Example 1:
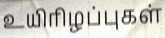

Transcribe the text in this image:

உயிரிழப்புகள்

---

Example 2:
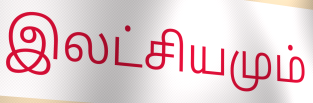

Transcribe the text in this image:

இலட்சியமும்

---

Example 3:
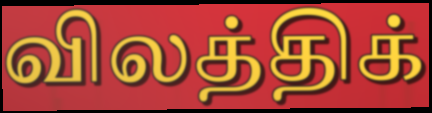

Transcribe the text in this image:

விலத்திக்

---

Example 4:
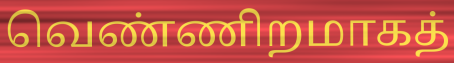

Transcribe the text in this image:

வெண்ணிறமாகத்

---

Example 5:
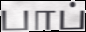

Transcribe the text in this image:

பாப்